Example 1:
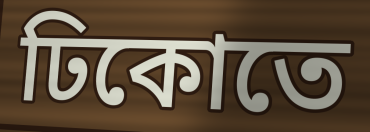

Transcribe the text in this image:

ঢিকোতে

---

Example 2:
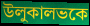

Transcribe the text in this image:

উলুকালভকে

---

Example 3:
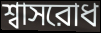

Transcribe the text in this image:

শ্বাসরোধ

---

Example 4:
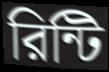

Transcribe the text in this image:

রিন্টি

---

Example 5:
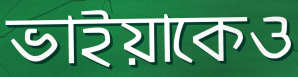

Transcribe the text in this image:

ভাইয়াকেও